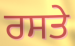
ਰਸਤੇ